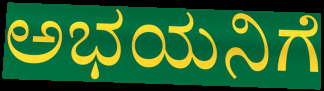
ಅಭಯನಿಗೆ